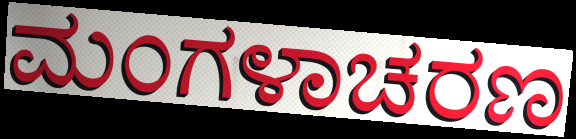
ಮಂಗಳಾಚರಣ